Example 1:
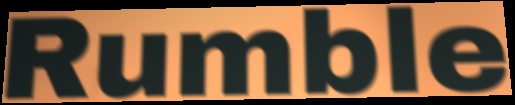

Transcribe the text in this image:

Rumble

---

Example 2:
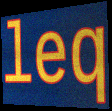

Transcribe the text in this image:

leq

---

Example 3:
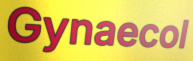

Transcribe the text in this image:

Gynaecol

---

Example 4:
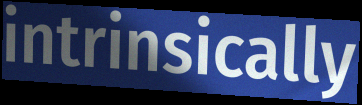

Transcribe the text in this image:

intrinsically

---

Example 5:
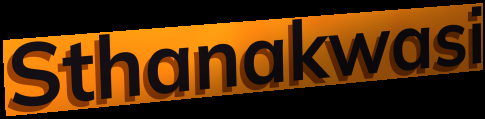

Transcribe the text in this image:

Sthanakwasi